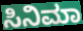
ಸಿನಿಮಾ